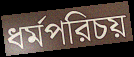
ধর্মপরিচয়